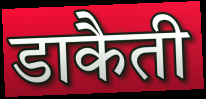
डाकैती